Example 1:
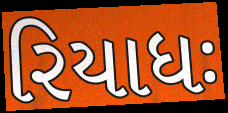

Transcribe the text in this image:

રિયાધઃ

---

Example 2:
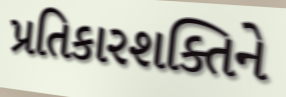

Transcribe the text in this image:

પ્રતિકારશક્તિને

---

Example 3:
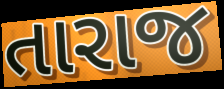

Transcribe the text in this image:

તારાજ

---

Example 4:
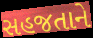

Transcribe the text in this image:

સહજતાને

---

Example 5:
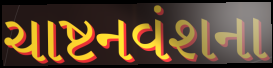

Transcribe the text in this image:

ચાષ્ટનવંશના